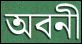
অবনী